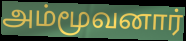
அம்மூவனார்